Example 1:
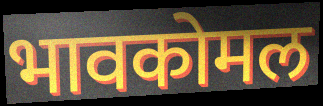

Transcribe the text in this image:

भावकोमल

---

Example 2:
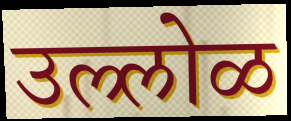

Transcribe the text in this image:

उल्लोळ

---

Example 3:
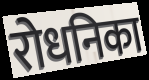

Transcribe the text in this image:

रोधनिका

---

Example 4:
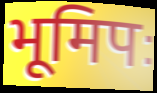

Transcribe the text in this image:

भूमिपः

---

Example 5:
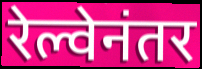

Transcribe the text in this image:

रेल्वेनंतर